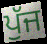
ਪੁੱਜ